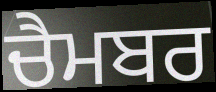
ਚੈਮਬਰ